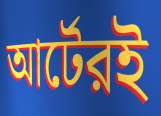
আর্টেরই